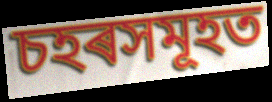
চহৰসমূহত